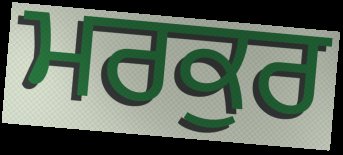
ਮਰਕੁਰ